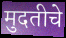
मुदतीचे